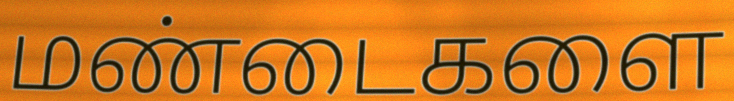
மண்டைகளை